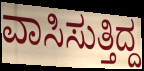
ವಾಸಿಸುತ್ತಿದ್ದ